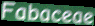
Fabaceae